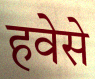
हवेसे